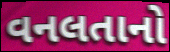
વનલતાનો